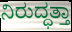
ನಿರುದ್ಧತ್ತಾ